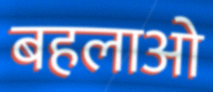
बहलाओ